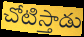
చోటిస్తాడు